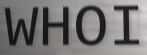
WHOI